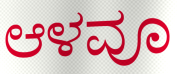
ಆಳವೂ